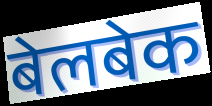
बेलबेक